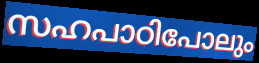
സഹപാഠിപോലും